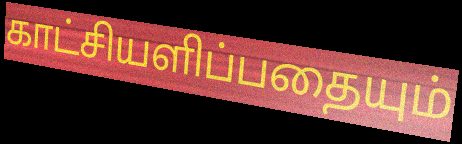
காட்சியளிப்பதையும்